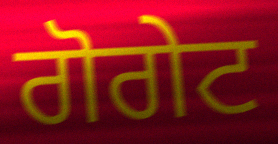
ਗੋਗੇਟ